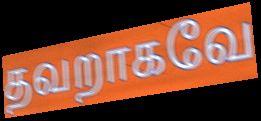
தவறாகவே